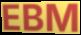
EBM